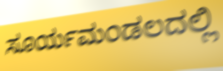
ಸೂರ್ಯಮಂಡಲದಲ್ಲಿ